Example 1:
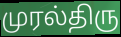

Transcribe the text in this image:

முரல்திரு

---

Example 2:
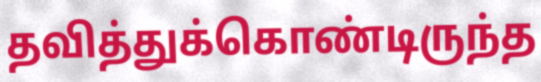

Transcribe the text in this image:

தவித்துக்கொண்டிருந்த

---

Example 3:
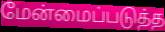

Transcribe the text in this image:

மேன்மைப்படுத்த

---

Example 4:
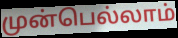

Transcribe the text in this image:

முன்பெல்லாம்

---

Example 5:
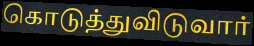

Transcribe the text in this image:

கொடுத்துவிடுவார்